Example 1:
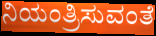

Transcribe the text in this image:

ನಿಯಂತ್ರಿಸುವಂತೆ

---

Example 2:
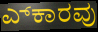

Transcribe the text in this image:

ಎ್‍ಕಾರವು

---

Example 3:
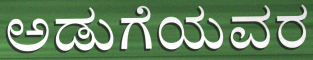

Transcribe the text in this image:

ಅಡುಗೆಯವರ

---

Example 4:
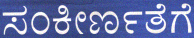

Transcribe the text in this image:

ಸಂಕೀರ್ಣತೆಗೆ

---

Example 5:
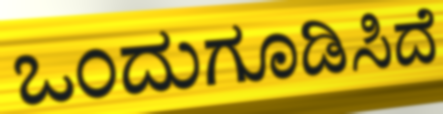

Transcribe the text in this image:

ಒಂದುಗೂಡಿಸಿದೆ